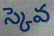
స్కెవ